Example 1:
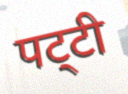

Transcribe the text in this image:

पट्‌टी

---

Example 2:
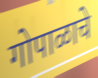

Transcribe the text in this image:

गोपाळाचे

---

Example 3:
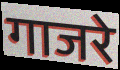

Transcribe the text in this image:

गाजरे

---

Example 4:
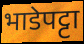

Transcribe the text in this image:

भाडेपट्टा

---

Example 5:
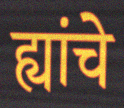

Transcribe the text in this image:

ह्यांचे